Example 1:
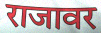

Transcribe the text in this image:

राजावर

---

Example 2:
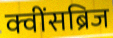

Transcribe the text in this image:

क्वींसब्रिज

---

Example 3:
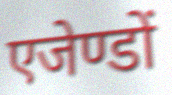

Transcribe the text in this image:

एजेण्डों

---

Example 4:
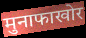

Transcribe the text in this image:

मुनाफाखोर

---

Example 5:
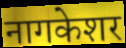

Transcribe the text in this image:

नागकेशर